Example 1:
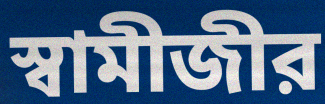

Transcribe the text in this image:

স্বামীজীর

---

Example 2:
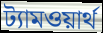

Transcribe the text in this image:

ট্যামওয়ার্থ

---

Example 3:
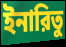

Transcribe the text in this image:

ইনারিতু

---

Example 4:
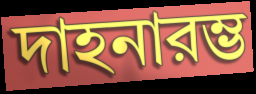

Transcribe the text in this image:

দাহনারম্ভ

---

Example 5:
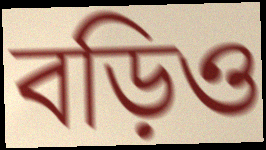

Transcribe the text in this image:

বড়িও